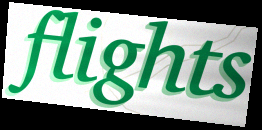
flights